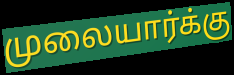
முலையார்க்கு